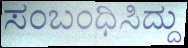
ಸಂಬಂಧಿಸಿದ್ದು